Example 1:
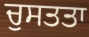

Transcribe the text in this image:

ਚੁਸਤਤਾ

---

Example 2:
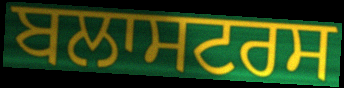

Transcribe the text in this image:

ਬਲਾਸਟਰਸ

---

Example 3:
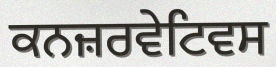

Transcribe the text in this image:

ਕਨਜ਼ਰਵੇਟਿਵਸ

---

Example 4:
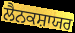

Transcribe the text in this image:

ਲੈਨਕਸ਼ਾਯਰ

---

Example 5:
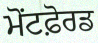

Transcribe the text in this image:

ਮੋਂਟਫ਼ੋਰਡ